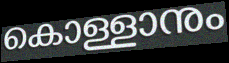
കൊള്ളാനും